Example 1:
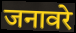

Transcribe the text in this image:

जनावरे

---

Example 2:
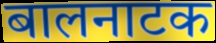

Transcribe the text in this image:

बालनाटक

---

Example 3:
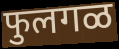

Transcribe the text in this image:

फुलगळ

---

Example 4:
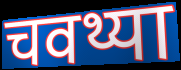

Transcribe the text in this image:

चवथ्या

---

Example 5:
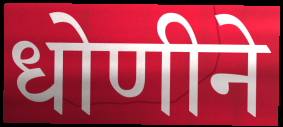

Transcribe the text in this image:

धोणीने